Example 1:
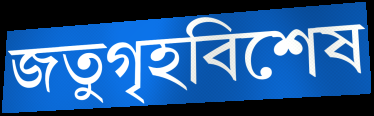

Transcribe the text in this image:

জতুগৃহবিশেষ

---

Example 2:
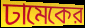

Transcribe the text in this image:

ঢামেকের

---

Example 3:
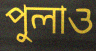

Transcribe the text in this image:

পুলাও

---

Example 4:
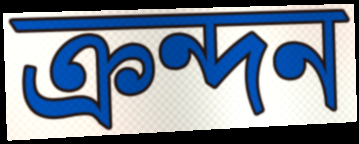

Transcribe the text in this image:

ক্রন্দন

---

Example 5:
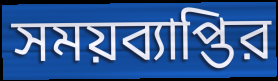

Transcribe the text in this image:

সময়ব্যাপ্তির